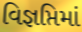
વિજ્ઞપ્તિમાં